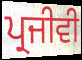
ਪ੍ਰਜੀਵੀ